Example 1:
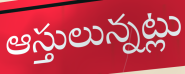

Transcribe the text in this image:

ఆస్తులున్నట్లు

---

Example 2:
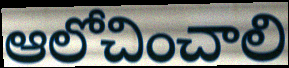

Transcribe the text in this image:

ఆలోచించాలి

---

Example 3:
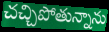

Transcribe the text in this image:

చచ్చిపోతున్నాను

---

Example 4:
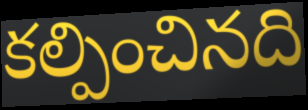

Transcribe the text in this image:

కల్పించినది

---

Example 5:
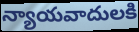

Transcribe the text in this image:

న్యాయవాదులకి